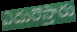
ఎదురొస్తారు